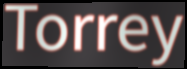
Torrey